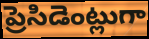
ప్రెసిడెంట్లుగా